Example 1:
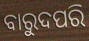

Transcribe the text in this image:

ବାରୁଦପରି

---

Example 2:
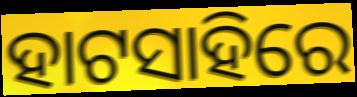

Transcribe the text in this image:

ହାଟସାହିରେ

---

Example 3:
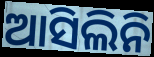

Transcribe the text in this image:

ଆସିଲିନି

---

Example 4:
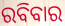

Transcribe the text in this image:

ରବିବାର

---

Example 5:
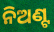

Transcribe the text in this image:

ନିଅଣ୍ଟ